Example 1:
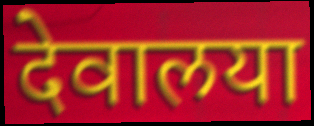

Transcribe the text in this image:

देवालया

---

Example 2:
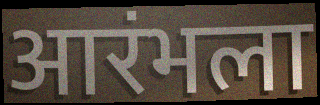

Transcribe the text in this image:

आरंभला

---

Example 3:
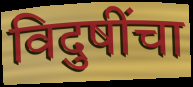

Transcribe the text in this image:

विदुषींचा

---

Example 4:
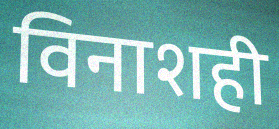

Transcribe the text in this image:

विनाशही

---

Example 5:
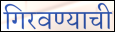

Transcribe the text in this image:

गिरवण्याची